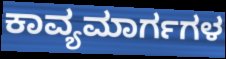
ಕಾವ್ಯಮಾರ್ಗಗಳ